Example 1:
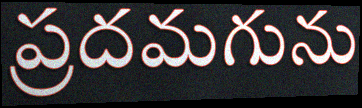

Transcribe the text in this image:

ప్రదమగును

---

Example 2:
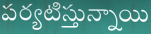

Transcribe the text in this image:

పర్యటిస్తున్నాయి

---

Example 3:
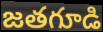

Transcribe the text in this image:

జతగూడి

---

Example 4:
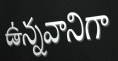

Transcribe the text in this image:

ఉన్నవానిగా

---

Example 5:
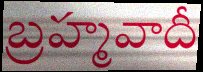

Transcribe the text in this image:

బ్రహ్మవాదీ